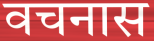
वचनास